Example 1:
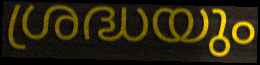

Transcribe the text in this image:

ശ്രദ്ധയും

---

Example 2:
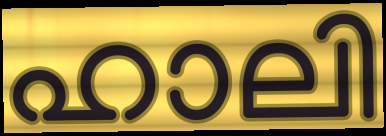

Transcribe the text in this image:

ഹാലി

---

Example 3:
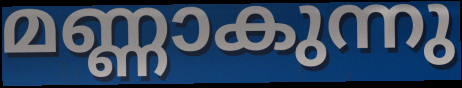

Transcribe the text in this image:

മണ്ണാകുന്നു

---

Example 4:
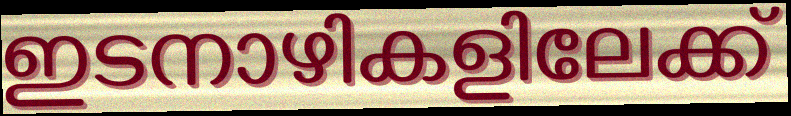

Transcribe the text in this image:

ഇടനാഴികളിലേക്ക്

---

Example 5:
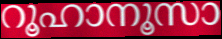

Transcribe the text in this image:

റൂഹാനൂസാ